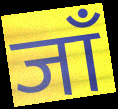
जाँ